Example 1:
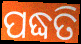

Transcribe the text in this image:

ପଦ୍ଧତି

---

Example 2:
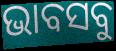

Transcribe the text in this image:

ଭାବସବୁ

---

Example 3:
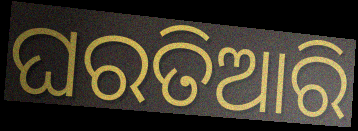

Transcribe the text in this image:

ଘରତିଆରି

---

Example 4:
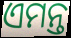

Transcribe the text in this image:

ଏମନ୍ତ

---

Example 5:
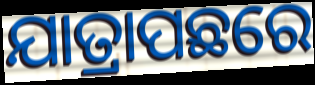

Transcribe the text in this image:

ଯାତ୍ରାପଛରେ